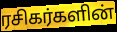
ரசிகர்களின்